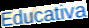
Educativa